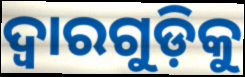
ଦ୍ୱାରଗୁଡ଼ିକୁ